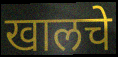
खालचे